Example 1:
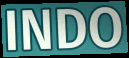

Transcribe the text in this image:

INDO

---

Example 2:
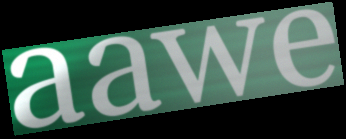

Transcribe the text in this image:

aawe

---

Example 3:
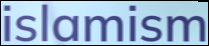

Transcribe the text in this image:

islamism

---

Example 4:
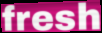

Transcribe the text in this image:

fresh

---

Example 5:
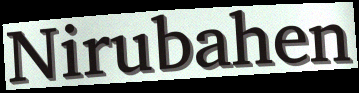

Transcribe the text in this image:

Nirubahen